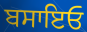
ਬਸਾਇਓ